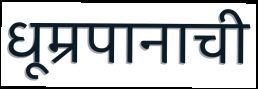
धूम्रपानाची